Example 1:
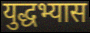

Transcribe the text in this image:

युद्धभ्यास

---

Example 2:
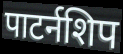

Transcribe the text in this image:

पाटर्नशिप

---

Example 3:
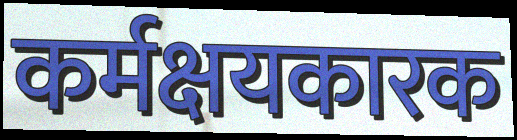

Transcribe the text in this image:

कर्मक्षयकारक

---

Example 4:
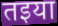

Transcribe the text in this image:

तइया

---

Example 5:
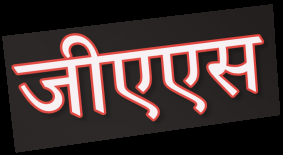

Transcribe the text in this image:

जीएएस